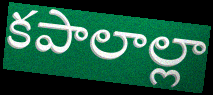
కపాలాల్లా